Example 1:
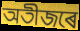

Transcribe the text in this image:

অতীজৰে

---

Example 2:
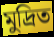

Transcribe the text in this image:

মুদ্ৰিত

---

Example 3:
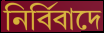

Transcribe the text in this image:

নিৰ্বিবাদে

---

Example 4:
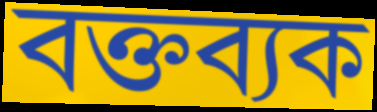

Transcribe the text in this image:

বক্তব্যক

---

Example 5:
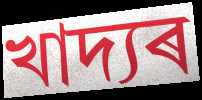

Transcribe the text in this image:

খাদ্যৰ